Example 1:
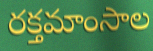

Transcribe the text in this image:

రక్తమాంసాల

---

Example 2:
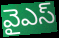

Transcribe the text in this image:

వైఎస్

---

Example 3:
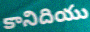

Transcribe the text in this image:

కానిదియు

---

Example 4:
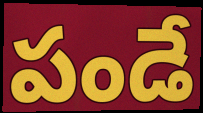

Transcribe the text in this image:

పండే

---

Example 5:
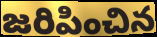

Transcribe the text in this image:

జరిపించిన